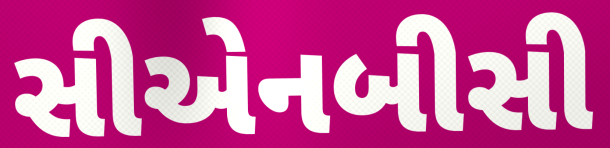
સીએનબીસી